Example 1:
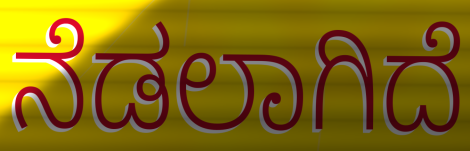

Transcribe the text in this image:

ನೆಡಲಾಗಿದೆ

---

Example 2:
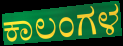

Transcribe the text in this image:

ಕಾಲಂಗಳ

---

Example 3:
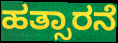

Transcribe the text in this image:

ಹತ್ಸಾರನೆ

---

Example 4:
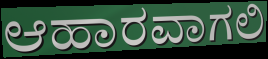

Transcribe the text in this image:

ಆಹಾರವಾಗಲಿ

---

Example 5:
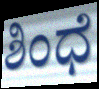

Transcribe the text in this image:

ಶಿಂಧೆ